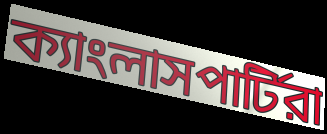
ক্যাংলাসপার্টিরা